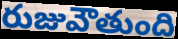
రుజువౌతుంది